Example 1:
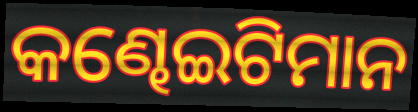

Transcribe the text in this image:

କଣ୍ଢେଇଟିମାନ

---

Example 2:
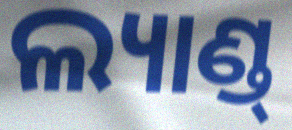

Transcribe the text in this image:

ଲ୍ୟାଣ୍ଡ୍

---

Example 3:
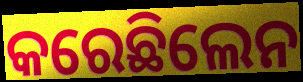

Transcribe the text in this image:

କରେଛିଲେନ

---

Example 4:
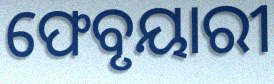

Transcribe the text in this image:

ଫେବୃୟାରୀ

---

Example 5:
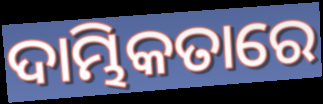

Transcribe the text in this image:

ଦାମ୍ଭିକତାରେ